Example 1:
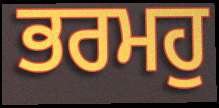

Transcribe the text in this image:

ਭਰਮਹੁ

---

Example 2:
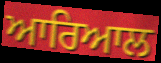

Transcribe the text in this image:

ਆਰਿਆਲ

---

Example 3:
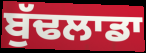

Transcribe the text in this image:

ਬੁੱਢਲਾਡਾ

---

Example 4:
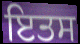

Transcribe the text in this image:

ਇਤਸ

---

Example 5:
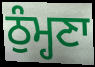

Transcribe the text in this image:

ਠੁੰਮ੍ਹਣਾ